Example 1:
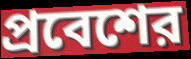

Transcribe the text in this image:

প্রবেশের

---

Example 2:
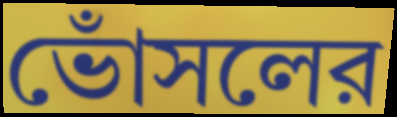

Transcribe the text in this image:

ভোঁসলের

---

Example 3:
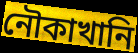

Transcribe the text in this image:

নৌকাখানি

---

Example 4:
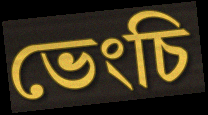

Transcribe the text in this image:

ভেংচি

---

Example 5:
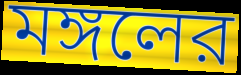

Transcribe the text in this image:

মঙ্গলের